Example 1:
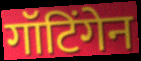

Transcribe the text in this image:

गॉटिंगेन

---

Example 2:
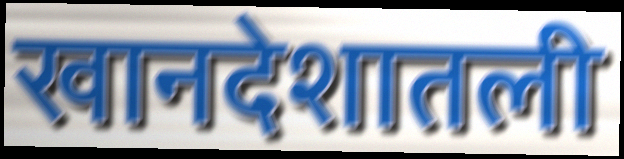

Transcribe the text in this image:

खानदेशातली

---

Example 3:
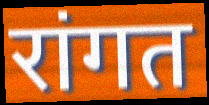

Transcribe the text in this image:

रांगत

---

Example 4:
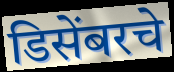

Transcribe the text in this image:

डिसेंबरचे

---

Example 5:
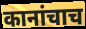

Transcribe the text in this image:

कानांचाच